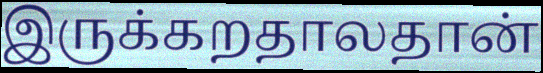
இருக்கறதாலதான்